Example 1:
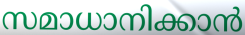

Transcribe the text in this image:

സമാധാനിക്കാൻ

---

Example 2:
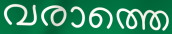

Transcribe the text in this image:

വരാത്തെ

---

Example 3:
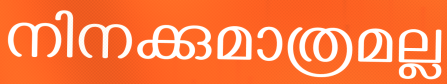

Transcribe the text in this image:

നിനക്കുമാത്രമല്ല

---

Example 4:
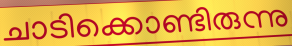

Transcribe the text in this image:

ചാടിക്കൊണ്ടിരുന്നു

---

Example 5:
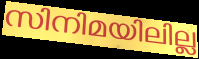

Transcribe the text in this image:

സിനിമയിലില്ല